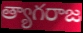
త్యాగరాజ